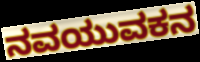
ನವಯುವಕನ